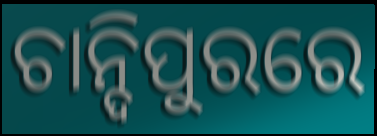
ଚାନ୍ଦିପୁରରେ